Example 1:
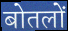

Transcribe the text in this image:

बोतलों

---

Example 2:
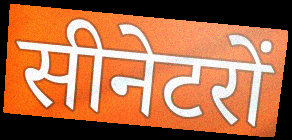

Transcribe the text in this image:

सीनेटरों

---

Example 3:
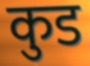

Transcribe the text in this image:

कुड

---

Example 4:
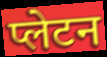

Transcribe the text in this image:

प्लेटन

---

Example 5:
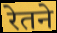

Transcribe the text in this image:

रेतने